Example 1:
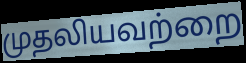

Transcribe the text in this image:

முதலியவற்றை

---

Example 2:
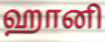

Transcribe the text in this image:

ஹானி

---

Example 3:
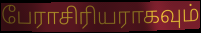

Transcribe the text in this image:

பேராசிரியராகவும்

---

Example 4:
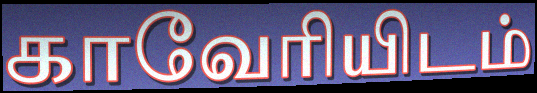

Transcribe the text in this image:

காவேரியிடம்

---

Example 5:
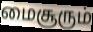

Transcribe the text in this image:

மைசூரும்